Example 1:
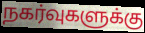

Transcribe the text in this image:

நகர்வுகளுக்கு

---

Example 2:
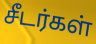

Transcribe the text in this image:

சீடர்கள்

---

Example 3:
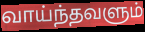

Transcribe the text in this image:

வாய்ந்தவளும்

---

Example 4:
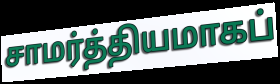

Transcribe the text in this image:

சாமர்த்தியமாகப்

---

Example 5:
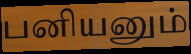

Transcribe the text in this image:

பனியனும்